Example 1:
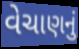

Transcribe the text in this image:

વેચાણનું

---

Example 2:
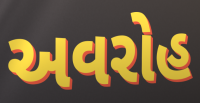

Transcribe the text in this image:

અવરોહ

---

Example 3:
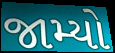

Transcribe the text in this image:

જામ્યો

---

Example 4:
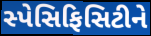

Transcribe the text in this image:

સ્પેસિફિસિટીને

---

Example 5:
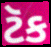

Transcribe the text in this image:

ટૅક